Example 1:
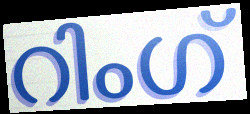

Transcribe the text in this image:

റിംഗ്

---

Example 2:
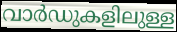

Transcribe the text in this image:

വാർഡുകളിലുള്ള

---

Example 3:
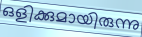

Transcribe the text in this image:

ഒളിക്കുമായിരുന്നു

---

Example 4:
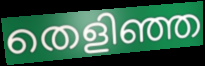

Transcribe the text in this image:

തെളിഞ്ഞ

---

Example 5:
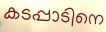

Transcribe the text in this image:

കടപ്പാടിനെ